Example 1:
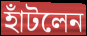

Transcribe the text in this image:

হাঁটলেন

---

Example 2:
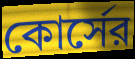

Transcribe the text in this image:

কোর্সের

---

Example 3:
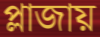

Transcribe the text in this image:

প্লাজায়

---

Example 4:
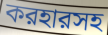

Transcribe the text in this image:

করহারসহ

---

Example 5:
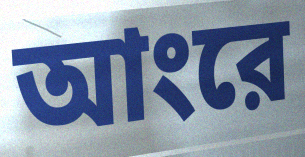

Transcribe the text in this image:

আংরে